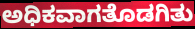
ಅಧಿಕವಾಗತೊಡಗಿತು